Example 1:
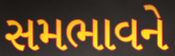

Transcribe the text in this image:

સમભાવને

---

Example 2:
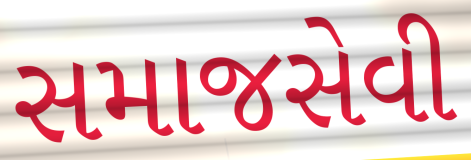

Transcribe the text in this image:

સમાજસેવી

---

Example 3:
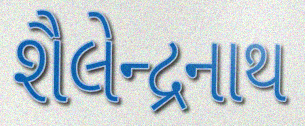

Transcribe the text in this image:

શૈલેન્દ્રનાથ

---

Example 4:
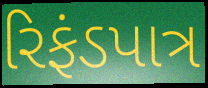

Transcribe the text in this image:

રિફંડપાત્ર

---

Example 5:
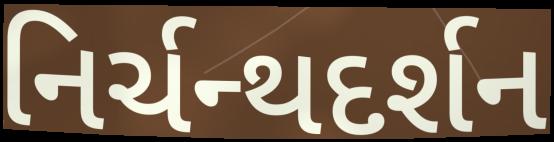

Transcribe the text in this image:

નિર્ચન્થદર્શન